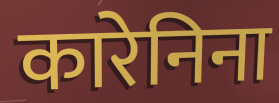
कारेनिना